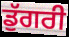
ਡੁੱਗਰੀ